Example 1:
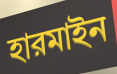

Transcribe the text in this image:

হারমাইন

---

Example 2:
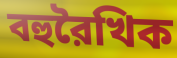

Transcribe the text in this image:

বহুরৈখিক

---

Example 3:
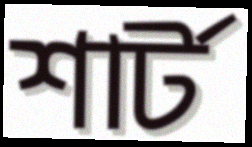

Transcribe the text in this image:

শার্ট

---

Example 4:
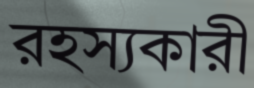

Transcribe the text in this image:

রহস্যকারী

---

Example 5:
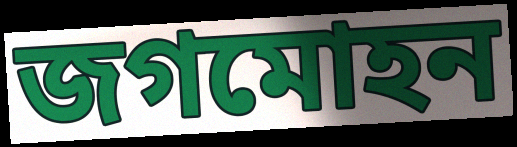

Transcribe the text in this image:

জগমোহন